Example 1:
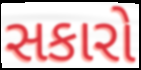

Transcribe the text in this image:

સકારો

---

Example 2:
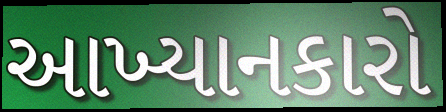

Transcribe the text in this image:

આખ્યાનકારો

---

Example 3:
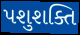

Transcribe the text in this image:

પશુશક્તિ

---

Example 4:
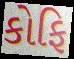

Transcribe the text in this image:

કોફિ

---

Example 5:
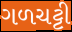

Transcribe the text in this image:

ગળચટ્ટી